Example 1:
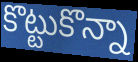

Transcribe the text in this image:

కొట్టుకొన్నా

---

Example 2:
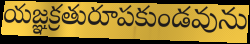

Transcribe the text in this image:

యజ్ఞక్రతురూపకుండవును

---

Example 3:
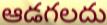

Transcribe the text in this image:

ఆడగలదు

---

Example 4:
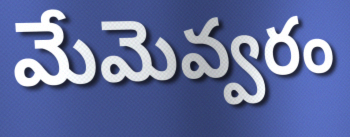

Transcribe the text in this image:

మేమెవ్వరం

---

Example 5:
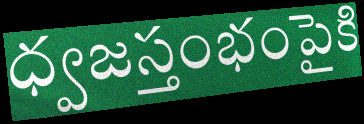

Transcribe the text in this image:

ధ్వజస్తంభంపైకి